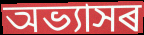
অভ্যাসৰ